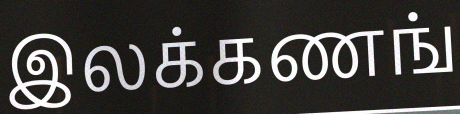
இலக்கணங்